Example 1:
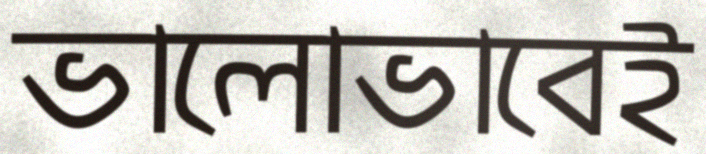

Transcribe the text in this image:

ভালোভাবেই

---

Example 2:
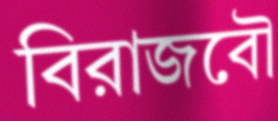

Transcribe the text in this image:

বিরাজবৌ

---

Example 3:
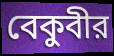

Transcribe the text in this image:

বেকুবীর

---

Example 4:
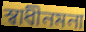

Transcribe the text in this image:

স্বাধীনমনা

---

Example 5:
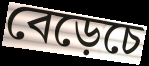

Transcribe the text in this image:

বেড়েচে